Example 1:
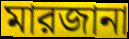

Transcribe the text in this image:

মারজানা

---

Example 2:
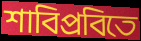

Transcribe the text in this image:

শাবিপ্রবিতে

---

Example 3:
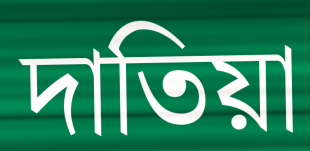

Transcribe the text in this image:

দাতিয়া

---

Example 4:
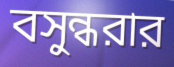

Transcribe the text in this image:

বসুন্ধরার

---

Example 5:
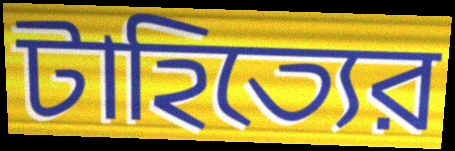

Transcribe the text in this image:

টাহিত্যের